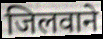
जिलवाने